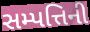
સમ્પત્તિની